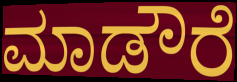
ಮಾಡೌರೆ